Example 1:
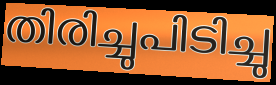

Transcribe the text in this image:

തിരിച്ചുപിടിച്ചു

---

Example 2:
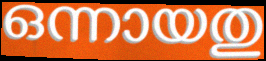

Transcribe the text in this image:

ഒന്നായതു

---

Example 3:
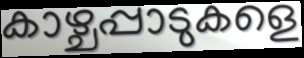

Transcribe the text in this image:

കാഴ്ചപ്പാടുകളെ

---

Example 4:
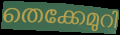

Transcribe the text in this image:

തെക്കേമുറി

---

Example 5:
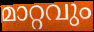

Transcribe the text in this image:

മാറ്റവും